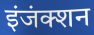
इंजंक्शन